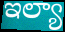
ఇల్యా